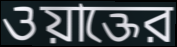
ওয়াক্তের